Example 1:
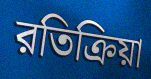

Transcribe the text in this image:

রতিক্রিয়া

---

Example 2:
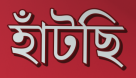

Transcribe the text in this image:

হাঁটছি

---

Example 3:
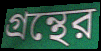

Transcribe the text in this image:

গ্রন্থের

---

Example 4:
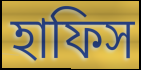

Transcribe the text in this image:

হাফিস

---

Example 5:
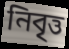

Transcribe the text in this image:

নিবৃত্ত